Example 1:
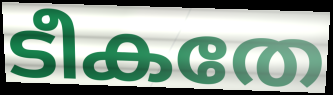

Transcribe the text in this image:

ടീകതേ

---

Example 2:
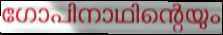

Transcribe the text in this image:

ഗോപിനാഥിന്റെയും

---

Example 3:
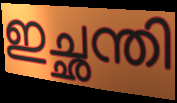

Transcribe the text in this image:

ഇച്ഛന്തി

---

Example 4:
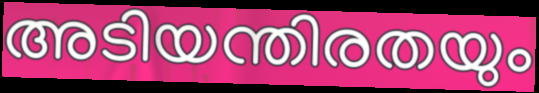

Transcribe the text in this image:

അടിയന്തിരതയും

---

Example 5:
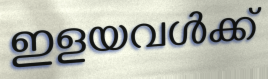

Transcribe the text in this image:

ഇളയവൾക്ക്